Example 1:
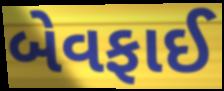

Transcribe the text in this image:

બેવફાઈ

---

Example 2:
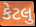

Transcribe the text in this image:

કેટલુ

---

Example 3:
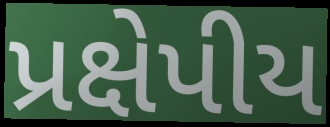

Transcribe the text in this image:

પ્રક્ષેપીય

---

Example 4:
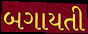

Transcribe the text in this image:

બગાયતી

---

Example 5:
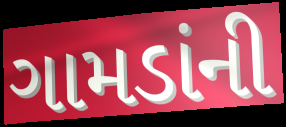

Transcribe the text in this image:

ગામડાંની